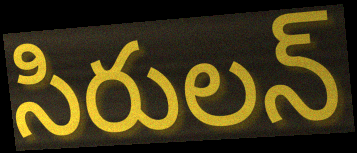
సిరులన్